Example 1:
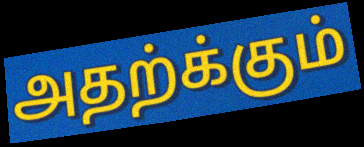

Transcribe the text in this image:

அதற்க்கும்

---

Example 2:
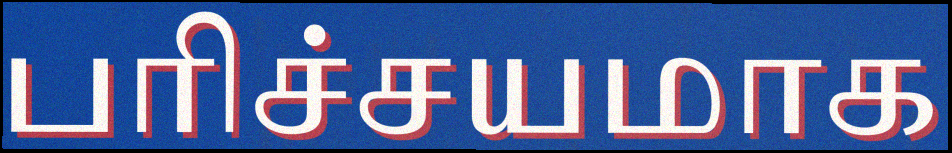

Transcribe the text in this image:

பரிச்சயமாக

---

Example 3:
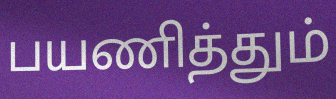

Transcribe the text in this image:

பயணித்தும்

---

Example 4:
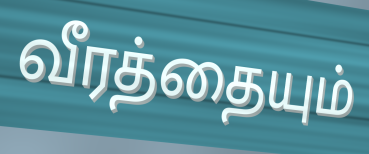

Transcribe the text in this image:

வீரத்தையும்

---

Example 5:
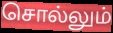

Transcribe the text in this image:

சொல்லும்